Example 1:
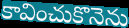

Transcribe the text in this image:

కావించుకొనెను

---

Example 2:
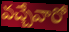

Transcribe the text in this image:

వచ్చేవారో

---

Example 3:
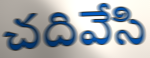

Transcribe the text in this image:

చదివేసి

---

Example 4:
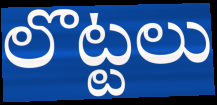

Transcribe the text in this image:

లొట్టలు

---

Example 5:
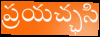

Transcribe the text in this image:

ప్రయచ్ఛసి